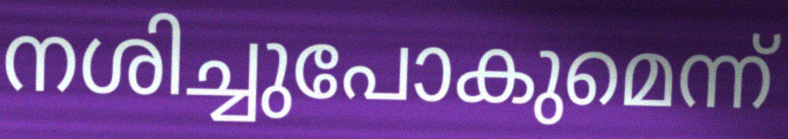
നശിച്ചുപോകുമെന്ന്